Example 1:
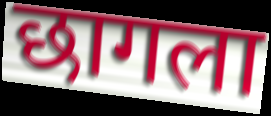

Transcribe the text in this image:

छागला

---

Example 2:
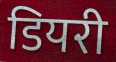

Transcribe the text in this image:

डियरी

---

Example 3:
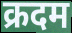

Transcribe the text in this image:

क्रदम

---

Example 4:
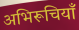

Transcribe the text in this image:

अभिरूचियाँ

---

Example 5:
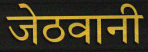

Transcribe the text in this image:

जेठवानी